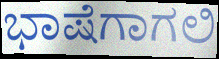
ಭಾಷೆಗಾಗಲಿ